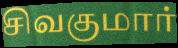
சிவகுமார்